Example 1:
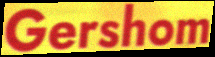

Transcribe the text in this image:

Gershom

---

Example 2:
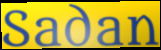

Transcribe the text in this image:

Sadan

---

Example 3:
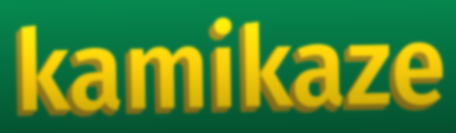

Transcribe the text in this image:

kamikaze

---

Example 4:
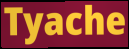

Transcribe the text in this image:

Tyache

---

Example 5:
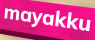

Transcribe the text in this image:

mayakku